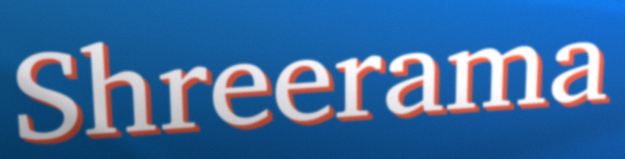
Shreerama